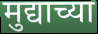
मुद्याच्या